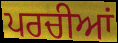
ਪਰਚੀਆਂ